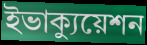
ইভাক্যুয়েশন